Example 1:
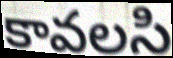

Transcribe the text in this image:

కావలసి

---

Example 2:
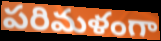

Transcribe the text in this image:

పరిమళంగా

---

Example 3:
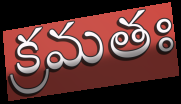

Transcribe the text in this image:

క్రమతః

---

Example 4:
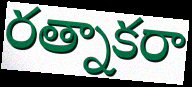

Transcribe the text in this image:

రత్నాకరా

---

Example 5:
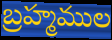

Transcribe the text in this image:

బ్రహ్మముల